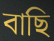
বাছি